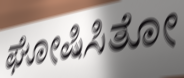
ಘೋಷಿಸಿತೋ